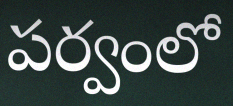
పర్వంలో